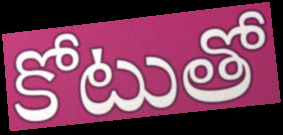
కోటుతో